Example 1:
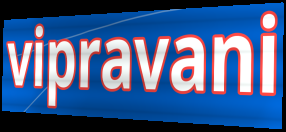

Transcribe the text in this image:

vipravani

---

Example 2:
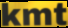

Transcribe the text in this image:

kmt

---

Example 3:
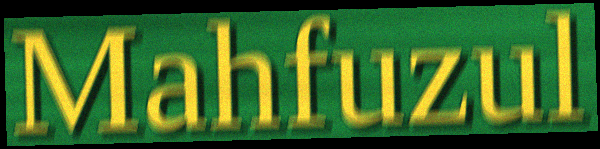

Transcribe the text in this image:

Mahfuzul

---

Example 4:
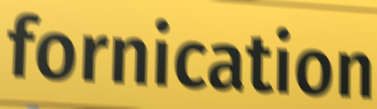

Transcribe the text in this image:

fornication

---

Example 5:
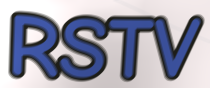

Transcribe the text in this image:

RSTV